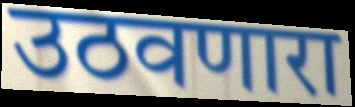
उठवणारा